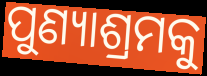
ପୁଣ୍ୟାଶ୍ରମକୁ